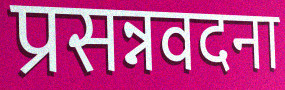
प्रसन्नवदना